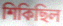
শিকিছিল